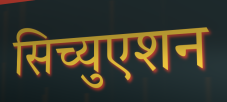
सिच्युएशन